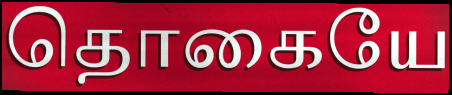
தொகையே